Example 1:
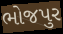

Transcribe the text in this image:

ભોજપુર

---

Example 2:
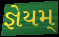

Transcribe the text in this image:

જ્ઞેયમ્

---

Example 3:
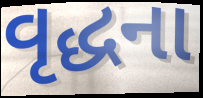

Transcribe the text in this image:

વૃદ્ધના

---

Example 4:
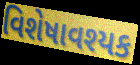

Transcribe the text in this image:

વિશેષાવશ્યક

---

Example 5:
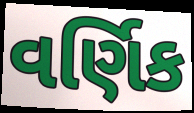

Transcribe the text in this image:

વર્ણિક